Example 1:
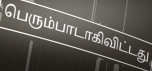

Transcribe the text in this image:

பெரும்பாடாகிவிட்டது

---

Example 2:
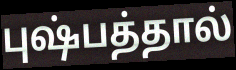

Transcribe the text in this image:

புஷ்பத்தால்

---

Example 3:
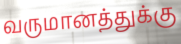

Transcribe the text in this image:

வருமானத்துக்கு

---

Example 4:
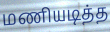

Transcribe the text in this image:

மணியடித்த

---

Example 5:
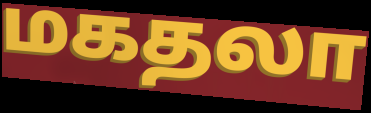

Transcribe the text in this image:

மகதலா